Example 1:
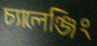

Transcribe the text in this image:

চ্যালেঞ্জিং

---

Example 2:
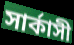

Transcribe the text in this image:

সার্কাসী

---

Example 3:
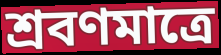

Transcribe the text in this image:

শ্রবণমাত্রে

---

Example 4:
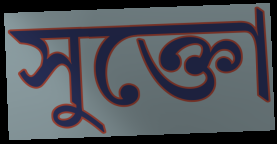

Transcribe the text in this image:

সুক্তো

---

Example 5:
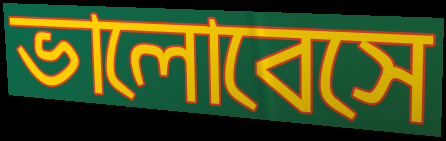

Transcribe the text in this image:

ভালোবেসে